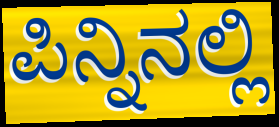
ಪಿನ್ನಿನಲ್ಲಿ